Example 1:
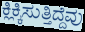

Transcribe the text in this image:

ಕ್ಲಿಕ್ಕಿಸುತ್ತಿದ್ದೆವು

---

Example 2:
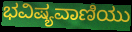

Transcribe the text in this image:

ಭವಿಷ್ಯವಾಣಿಯು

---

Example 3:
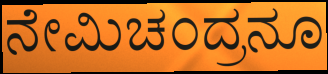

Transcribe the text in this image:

ನೇಮಿಚಂದ್ರನೂ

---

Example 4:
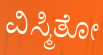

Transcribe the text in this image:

ವಿಸ್ಮಿತೋ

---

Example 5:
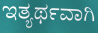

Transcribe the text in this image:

ಇತ್ಯರ್ಥವಾಗಿ